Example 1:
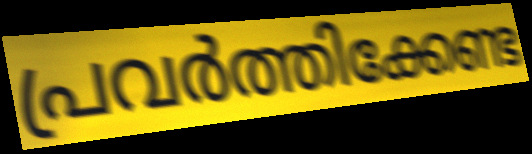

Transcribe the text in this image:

പ്രവർത്തിക്കേണ്ട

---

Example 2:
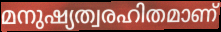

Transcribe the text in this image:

മനുഷ്യത്വരഹിതമാണ്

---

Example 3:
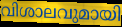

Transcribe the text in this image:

വിശാലവുമായി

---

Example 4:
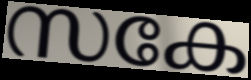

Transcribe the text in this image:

സകേ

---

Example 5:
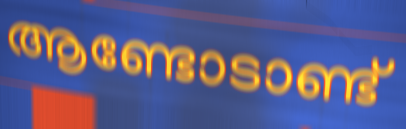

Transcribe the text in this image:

ആണ്ടോടാണ്ട്